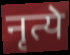
नृत्ये